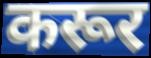
करूर